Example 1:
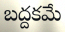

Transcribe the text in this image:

బద్దకమే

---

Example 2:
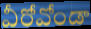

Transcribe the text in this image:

వీరోవోండా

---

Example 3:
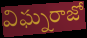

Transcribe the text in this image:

విఘ్నరాజో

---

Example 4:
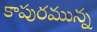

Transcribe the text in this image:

కాపురమున్న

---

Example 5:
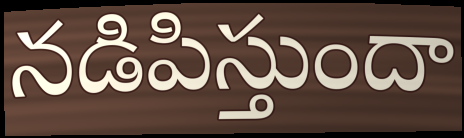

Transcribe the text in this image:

నడిపిస్తుందా